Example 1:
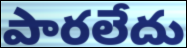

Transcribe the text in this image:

పారలేదు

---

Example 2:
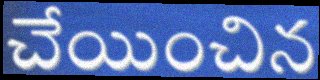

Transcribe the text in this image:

చేయించిన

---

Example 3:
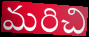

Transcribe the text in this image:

మరిచి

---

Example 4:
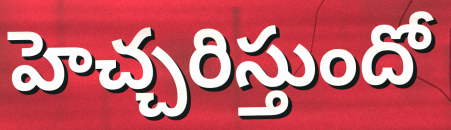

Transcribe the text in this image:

హెచ్చరిస్తుందో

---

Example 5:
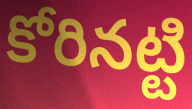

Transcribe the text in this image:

కోరినట్టి